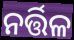
ନର୍ତ୍ତିଳ